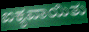
ಐಕ್ಯವಾಯಿತು